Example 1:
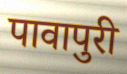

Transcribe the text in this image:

पावापुरी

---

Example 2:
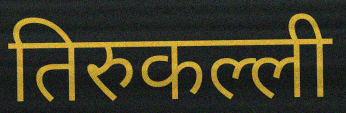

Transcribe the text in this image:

तिरुकल्ली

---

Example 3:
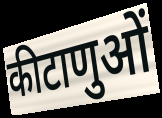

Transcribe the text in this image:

कीटाणुओं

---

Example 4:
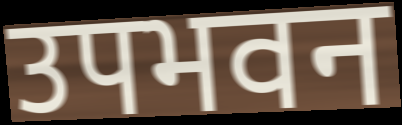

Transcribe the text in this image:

उपभवन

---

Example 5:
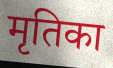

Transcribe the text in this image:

मृतिका